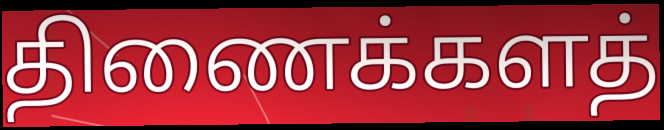
திணைக்களத்